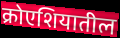
क्रोएशियातील